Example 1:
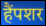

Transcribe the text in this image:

हैंपशर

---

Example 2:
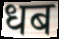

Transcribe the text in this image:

धब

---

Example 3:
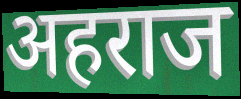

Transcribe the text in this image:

अहराज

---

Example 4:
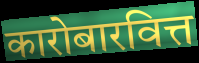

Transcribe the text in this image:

कारोबारवित्त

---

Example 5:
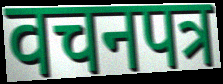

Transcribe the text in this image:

वचनपत्र